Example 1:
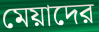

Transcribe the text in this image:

মেয়াদের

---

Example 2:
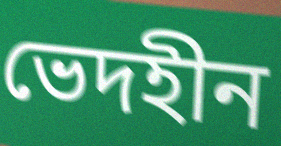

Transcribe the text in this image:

ভেদহীন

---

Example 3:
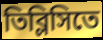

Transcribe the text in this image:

তিব্লিসিতে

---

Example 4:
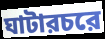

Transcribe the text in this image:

ঘাটারচরে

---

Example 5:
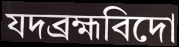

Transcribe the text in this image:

যদব্রহ্মবিদো